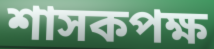
শাসকপক্ষ